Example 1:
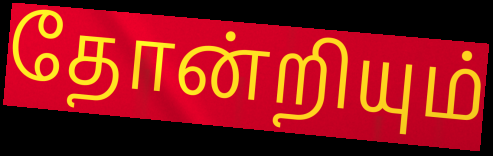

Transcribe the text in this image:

தோன்றியும்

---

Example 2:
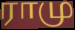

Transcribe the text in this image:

ராமு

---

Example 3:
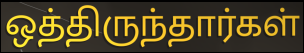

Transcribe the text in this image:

ஒத்திருந்தார்கள்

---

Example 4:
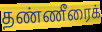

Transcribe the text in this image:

தண்ணீரைக்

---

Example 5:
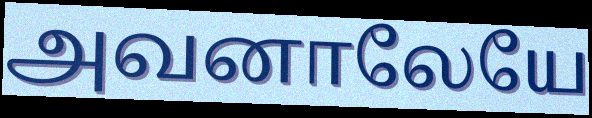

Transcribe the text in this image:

அவனாலேயே